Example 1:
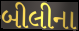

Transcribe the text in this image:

બીલીના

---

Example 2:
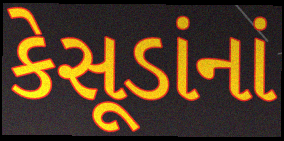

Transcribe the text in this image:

કેસૂડાંનાં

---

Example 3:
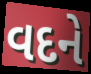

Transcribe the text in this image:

વદને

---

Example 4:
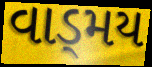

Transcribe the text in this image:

વાડ્મય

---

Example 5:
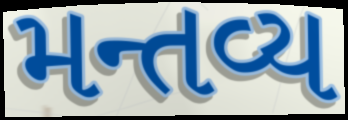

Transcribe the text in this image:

મન્તવ્ય